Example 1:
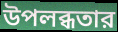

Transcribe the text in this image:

উপলব্ধতার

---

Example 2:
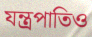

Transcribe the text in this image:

যন্ত্রপাতিও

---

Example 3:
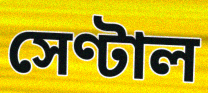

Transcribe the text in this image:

সেণ্টাল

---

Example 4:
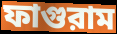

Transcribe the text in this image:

ফাগুরাম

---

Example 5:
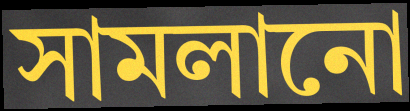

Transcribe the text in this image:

সামলানো